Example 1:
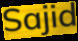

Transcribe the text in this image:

Sajid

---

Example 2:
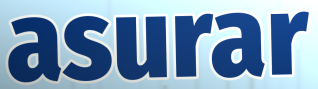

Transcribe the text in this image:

asurar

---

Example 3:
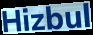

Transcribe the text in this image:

Hizbul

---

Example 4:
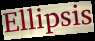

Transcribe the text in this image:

Ellipsis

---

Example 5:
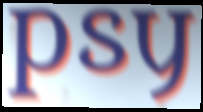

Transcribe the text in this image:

psy